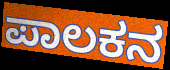
ಪಾಲಕನ